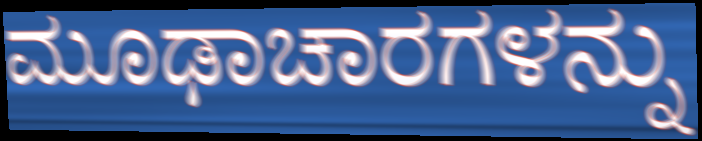
ಮೂಢಾಚಾರಗಳನ್ನು